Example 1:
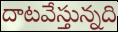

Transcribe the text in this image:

దాటవేస్తున్నది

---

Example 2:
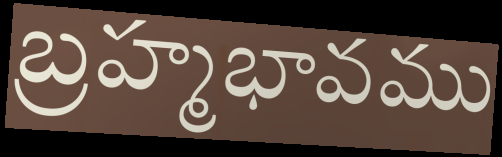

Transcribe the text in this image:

బ్రహ్మభావము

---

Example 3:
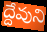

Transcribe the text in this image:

ద్దేవుని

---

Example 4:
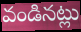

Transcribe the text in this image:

వండినట్లు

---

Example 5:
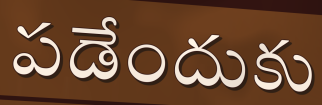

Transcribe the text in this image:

పడేందుకు